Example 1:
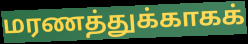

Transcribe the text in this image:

மரணத்துக்காகக்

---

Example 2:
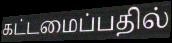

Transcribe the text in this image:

கட்டமைப்பதில்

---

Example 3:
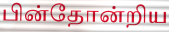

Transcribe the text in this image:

பின்தோன்றிய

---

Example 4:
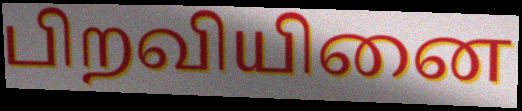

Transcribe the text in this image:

பிறவியினை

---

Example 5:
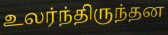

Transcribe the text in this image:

உலர்ந்திருந்தன